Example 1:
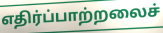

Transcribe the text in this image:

எதிர்ப்பாற்றலைச்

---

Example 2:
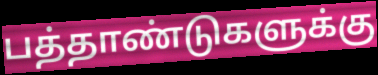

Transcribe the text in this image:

பத்தாண்டுகளுக்கு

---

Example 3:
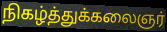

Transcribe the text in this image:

நிகழ்த்துக்கலைஞர்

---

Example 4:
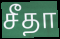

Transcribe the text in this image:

சீதா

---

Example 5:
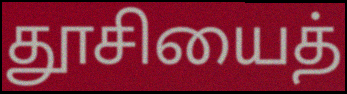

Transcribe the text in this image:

தூசியைத்